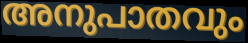
അനുപാതവും